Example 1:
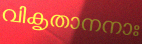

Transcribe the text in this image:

വികൃതാനനാഃ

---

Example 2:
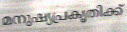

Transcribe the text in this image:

മനുഷ്യപ്രകൃതിക്ക്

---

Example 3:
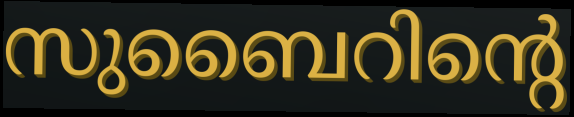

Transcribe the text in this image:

സുബൈറിന്റെ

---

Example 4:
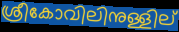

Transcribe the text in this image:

ശ്രീകോവിലിനുള്ളില്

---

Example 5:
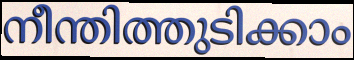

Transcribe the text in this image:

നീന്തിത്തുടിക്കാം